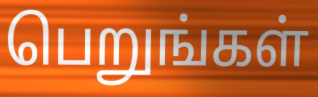
பெறுங்கள்